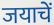
जयाचें